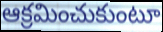
ఆక్రమించుకుంటూ